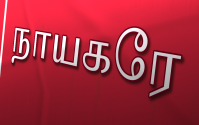
நாயகரே